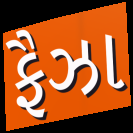
ફૈઝા